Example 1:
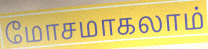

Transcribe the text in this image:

மோசமாகலாம்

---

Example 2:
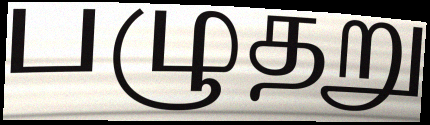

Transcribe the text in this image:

பழுதறு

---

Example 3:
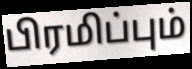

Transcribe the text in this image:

பிரமிப்பும்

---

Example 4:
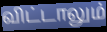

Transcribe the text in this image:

விட்டாலும்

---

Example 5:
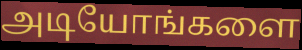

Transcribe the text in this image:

அடியோங்களை